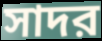
সাদর